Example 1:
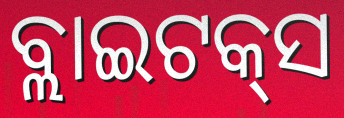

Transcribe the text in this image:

ବ୍ଲାଇଟକ୍‌ସ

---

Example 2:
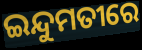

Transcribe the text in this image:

ଇନ୍ଦୁମତୀରେ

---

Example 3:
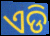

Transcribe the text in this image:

ଏଡି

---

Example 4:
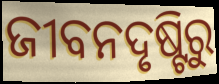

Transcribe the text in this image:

ଜୀବନଦୃଷ୍ଟିରୁ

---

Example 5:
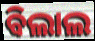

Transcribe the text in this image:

ବିଲାଲ